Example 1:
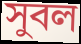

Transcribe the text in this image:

সুবল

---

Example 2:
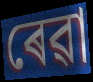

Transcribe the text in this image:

ৰেৱা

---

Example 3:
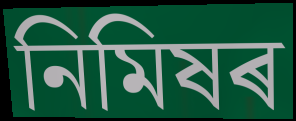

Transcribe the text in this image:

নিমিষৰ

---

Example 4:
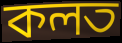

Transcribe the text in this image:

কলত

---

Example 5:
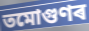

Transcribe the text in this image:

তমোগুণৰ